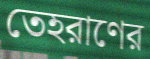
তেহরাণের